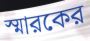
স্মারকের